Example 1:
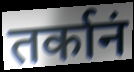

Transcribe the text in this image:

तर्कानं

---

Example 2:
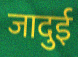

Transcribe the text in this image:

जादुई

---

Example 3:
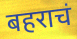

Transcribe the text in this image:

बहराचं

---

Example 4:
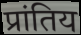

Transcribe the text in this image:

प्रांतिय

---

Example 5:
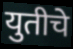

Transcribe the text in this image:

युतीचे